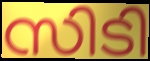
സിടി